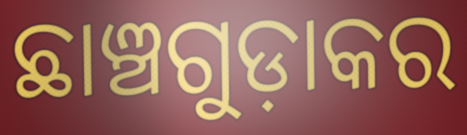
ଛାଞ୍ଚଗୁଡ଼ାକର